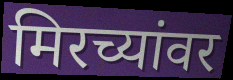
मिरच्यांवर